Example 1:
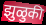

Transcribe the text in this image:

झुळुकी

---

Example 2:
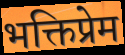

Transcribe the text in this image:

भक्तिप्रेम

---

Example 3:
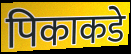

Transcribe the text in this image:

पिकाकडे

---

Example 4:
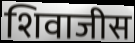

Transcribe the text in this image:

शिवाजीस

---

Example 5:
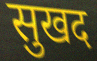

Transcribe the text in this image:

सुखद